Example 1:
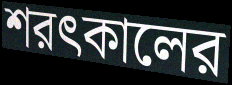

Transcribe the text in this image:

শরৎকালের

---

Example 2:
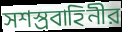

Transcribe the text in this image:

সশস্ত্রবাহিনীর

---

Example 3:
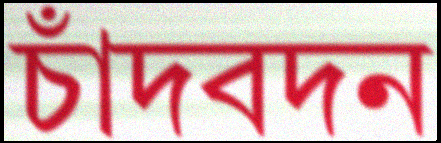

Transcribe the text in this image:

চাঁদবদন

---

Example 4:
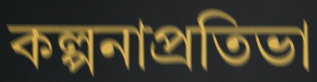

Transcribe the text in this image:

কল্পনাপ্রতিভা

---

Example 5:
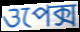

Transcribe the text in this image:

ওপেক্স